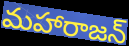
మహారాజన్